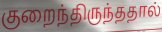
குறைந்திருந்ததால்